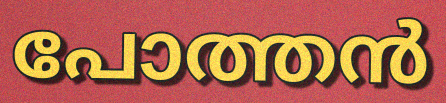
പോത്തൻ